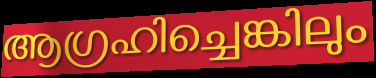
ആഗ്രഹിച്ചെങ്കിലും